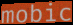
mobic